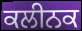
ਕਲੀਨਕ